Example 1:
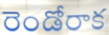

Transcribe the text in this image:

రెండోరాక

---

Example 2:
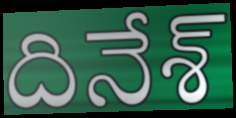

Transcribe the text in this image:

దినేశ్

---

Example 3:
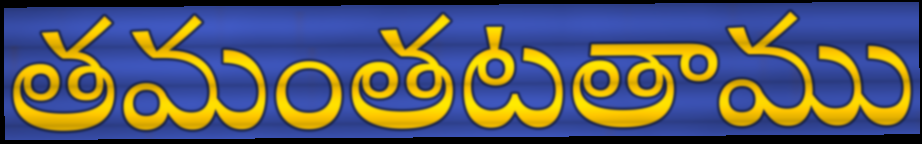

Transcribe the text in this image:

తమంతటతాము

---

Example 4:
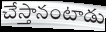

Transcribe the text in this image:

చేస్తానంటాడు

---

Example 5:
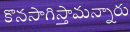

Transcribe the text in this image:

కొనసాగిస్తామన్నారు